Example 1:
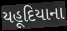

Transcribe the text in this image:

યહૂદિયાના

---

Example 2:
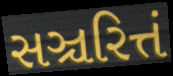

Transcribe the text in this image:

સઞ્ચરિત્તં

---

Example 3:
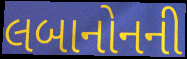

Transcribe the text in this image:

લબાનોનની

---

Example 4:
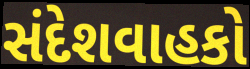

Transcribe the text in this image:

સંદેશવાહકો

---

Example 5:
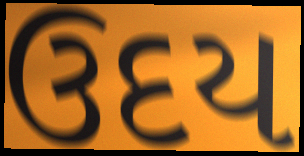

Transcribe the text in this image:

ઉદય